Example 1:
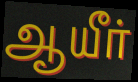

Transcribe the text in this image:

ஆயீர்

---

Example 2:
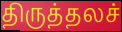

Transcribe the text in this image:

திருத்தலச்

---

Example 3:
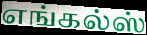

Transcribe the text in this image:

எங்கல்ஸ்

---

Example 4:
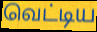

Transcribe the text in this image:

வெட்டிய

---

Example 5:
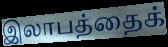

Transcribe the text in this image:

இலாபத்தைக்